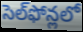
సెల్‌ఫోన్లలో